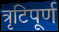
त्रृटिपूर्ण